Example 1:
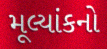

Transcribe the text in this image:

મૂલ્યાંકનો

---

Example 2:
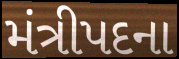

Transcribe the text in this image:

મંત્રીપદના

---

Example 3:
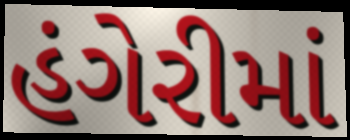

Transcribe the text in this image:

હંગેરીમાં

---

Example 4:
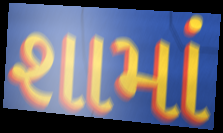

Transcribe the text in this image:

શામાં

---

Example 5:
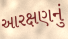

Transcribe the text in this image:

આરક્ષણનું